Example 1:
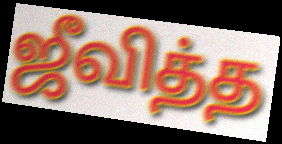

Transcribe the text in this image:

ஜீவித்த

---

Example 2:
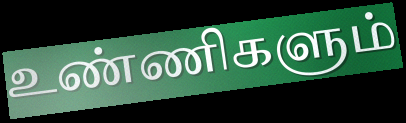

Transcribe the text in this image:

உண்ணிகளும்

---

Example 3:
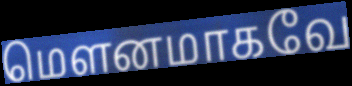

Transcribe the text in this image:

மெளனமாகவே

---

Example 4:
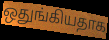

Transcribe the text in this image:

ஒதுங்கியதாக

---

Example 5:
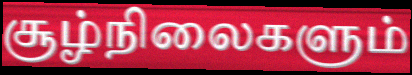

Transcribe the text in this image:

சூழ்நிலைகளும்